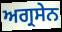
ਅਗ੍ਰਸੇਨ